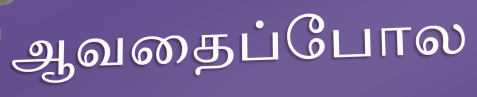
ஆவதைப்போல